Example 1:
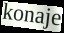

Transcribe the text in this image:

konaje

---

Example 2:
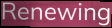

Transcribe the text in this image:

Renewing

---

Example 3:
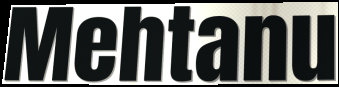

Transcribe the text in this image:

Mehtanu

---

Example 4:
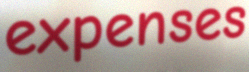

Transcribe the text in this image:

expenses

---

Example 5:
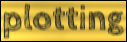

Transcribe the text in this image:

plotting